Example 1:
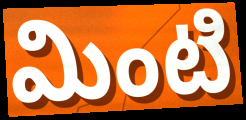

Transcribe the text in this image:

మింటి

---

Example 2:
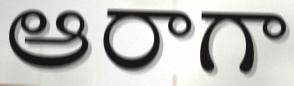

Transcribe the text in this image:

ఆరాగా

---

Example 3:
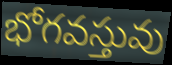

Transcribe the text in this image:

భోగవస్తువు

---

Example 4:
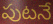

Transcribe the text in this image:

పుటనే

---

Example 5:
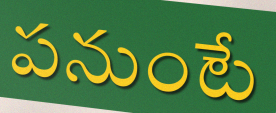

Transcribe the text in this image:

పనుంటే